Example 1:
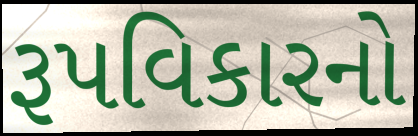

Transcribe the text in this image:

રૂપવિકારનો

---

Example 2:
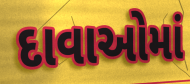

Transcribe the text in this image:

દાવાઓમાં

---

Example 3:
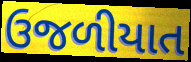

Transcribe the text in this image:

ઉજળીયાત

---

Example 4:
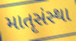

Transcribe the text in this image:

માતૃસંસ્થા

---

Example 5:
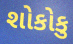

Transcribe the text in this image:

શોકોકુ